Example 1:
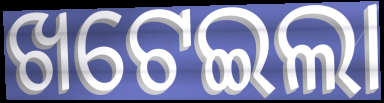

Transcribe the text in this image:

ଖଟେଇଲା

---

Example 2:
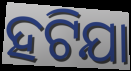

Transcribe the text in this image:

ହଟିଯା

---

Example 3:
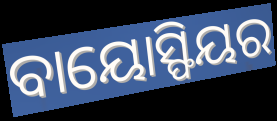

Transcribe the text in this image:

ବାୟୋସ୍ଫିୟର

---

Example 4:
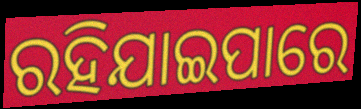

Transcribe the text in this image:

ରହିଯାଇପାରେ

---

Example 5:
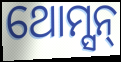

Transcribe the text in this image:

ଥୋମ୍ସନ୍